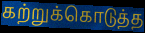
கற்றுக்கொடுத்த